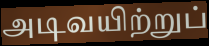
அடிவயிற்றுப்